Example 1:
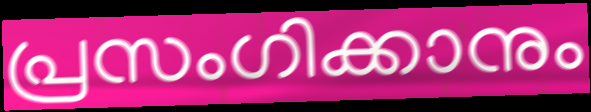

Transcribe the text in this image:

പ്രസംഗിക്കാനും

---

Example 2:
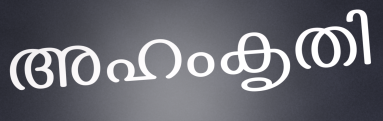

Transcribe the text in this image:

അഹംകൃതി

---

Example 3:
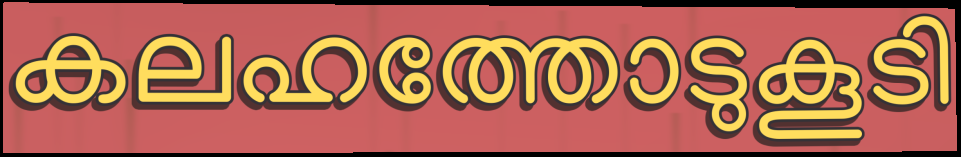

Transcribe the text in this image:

കലഹത്തോടുകൂടി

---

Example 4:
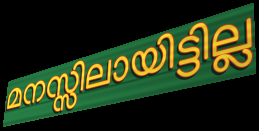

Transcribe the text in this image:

മനസ്സിലായിട്ടില്ല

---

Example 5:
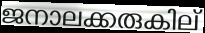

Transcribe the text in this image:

ജനാലക്കരുകില്